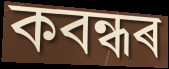
কবন্ধৰ